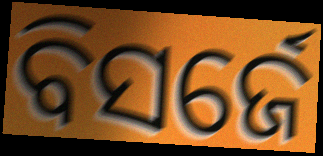
ବିସର୍ଜେ